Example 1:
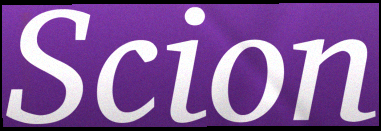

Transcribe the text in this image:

Scion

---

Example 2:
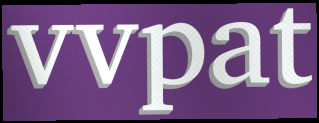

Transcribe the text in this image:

vvpat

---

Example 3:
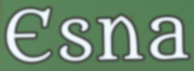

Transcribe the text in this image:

Esna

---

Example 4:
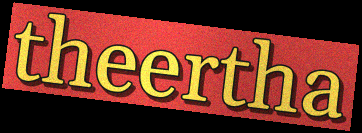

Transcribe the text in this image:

theertha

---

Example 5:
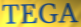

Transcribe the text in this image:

TEGA